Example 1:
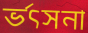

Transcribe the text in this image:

র্ভৎসনা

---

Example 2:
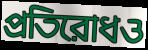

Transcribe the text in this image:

প্রতিরোধও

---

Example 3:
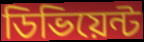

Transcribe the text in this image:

ডিভিয়েন্ট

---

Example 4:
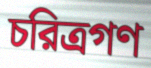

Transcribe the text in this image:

চরিত্রগণ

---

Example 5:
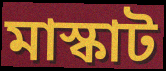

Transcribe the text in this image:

মাস্কাট